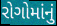
રોગોમાંનું